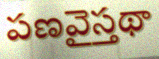
పణవైస్తథా